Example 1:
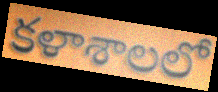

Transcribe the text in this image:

కళాశాలలో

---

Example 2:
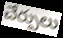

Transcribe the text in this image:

చేర్పులు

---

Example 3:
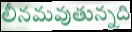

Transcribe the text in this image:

లీనమవుతున్నది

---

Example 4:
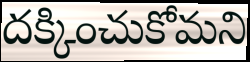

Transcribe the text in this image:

దక్కించుకోమని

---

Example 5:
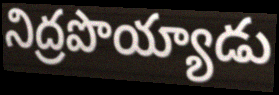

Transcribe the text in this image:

నిద్రపొయ్యాడు